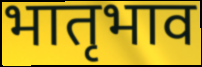
भातृभाव